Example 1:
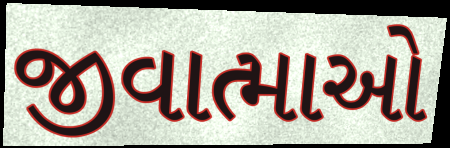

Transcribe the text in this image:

જીવાત્માઓ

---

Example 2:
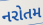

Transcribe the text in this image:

નરોતમ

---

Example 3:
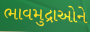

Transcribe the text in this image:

ભાવમુદ્રાઓને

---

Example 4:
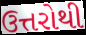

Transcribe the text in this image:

ઉત્તરોથી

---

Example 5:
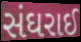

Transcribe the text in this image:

સંઘરાઈ